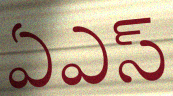
ఏఎస్